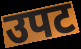
उपट